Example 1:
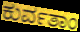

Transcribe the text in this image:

ಕುರ್ವತಾಂ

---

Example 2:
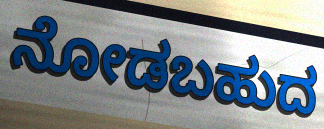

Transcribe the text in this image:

ನೋಡಬಹುದ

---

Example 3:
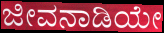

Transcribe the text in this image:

ಜೀವನಾಡಿಯೇ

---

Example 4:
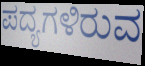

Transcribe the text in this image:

ಪದ್ಯಗಳಿರುವ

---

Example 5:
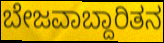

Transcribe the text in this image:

ಬೇಜವಾಬ್ದಾರಿತನ